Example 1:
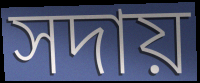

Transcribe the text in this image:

সদায়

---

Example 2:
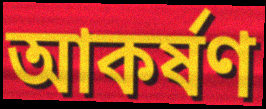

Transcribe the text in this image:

আকৰ্ষণ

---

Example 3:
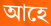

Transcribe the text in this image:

আহে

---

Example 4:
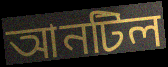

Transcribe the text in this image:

আনটিল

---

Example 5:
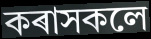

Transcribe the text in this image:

কৰাসকলে